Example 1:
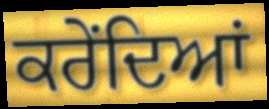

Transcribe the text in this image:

ਕਰੇਂਦਿਆਂ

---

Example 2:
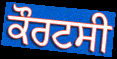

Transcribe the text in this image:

ਕੌਰਟਸੀ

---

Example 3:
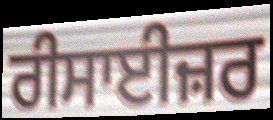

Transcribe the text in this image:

ਰੀਸਾਈਜ਼ਰ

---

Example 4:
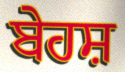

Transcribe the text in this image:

ਬੇਹਸ਼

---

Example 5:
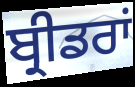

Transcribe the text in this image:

ਬ੍ਰੀਡਰਾਂ